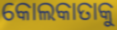
କୋଲକାତାକୁ